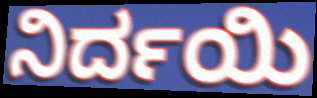
ನಿರ್ದಯಿ